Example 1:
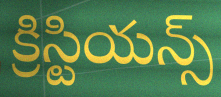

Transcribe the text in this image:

క్రిస్టియన్స్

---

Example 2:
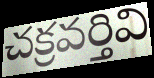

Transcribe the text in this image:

చక్రవర్తివి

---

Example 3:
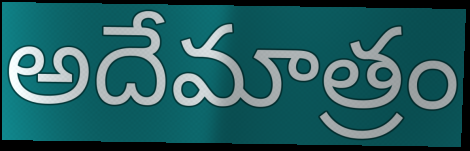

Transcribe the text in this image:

అదేమాత్రం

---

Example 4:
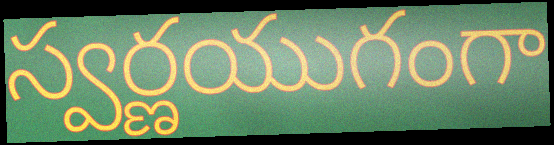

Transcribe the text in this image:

స్వర్ణయుగంగా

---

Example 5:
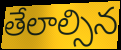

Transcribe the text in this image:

తేలాల్సిన